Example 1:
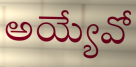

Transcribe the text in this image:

అయ్యేవో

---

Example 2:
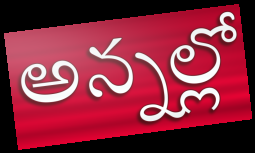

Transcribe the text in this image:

అన్నల్లో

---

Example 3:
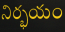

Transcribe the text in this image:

నిర్భయం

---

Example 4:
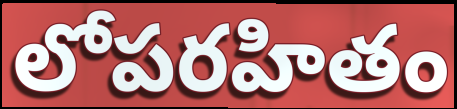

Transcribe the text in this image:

లోపరహితం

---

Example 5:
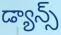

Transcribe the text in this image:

డ్యాన్స్